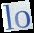
lo